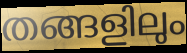
തങ്ങളിലും